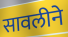
सावलीने